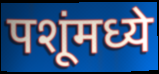
पशूंमध्ये